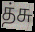
த்சு